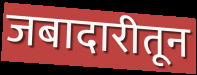
जबादारीतून